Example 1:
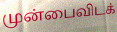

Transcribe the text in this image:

முன்பைவிடக்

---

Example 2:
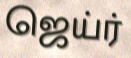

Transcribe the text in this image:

ஜெய்ர்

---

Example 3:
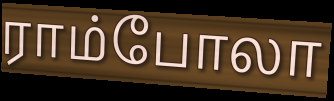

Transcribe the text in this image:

ராம்போலா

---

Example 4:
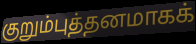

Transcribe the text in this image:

குறும்புத்தனமாகக்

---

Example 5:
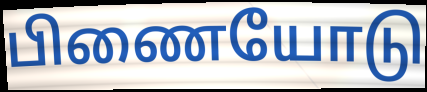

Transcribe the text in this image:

பிணையோடு